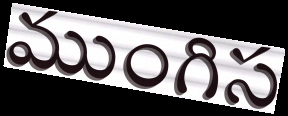
ముంగిస